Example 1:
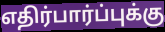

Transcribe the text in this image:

எதிர்பார்ப்புக்கு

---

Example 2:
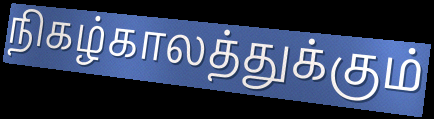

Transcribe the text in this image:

நிகழ்காலத்துக்கும்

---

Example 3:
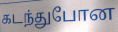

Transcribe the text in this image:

கடந்துபோன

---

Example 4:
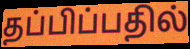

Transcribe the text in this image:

தப்பிப்பதில்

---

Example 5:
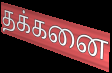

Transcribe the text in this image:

தக்கனை